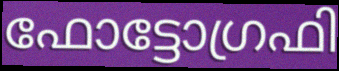
ഫോട്ടോഗ്രഫി